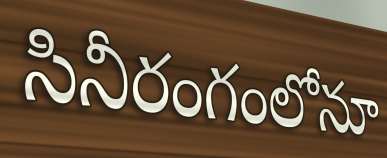
సినీరంగంలోనూ